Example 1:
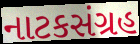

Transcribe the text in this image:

નાટકસંગ્રહ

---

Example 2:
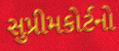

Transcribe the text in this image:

સુપ્રીમકોર્ટનો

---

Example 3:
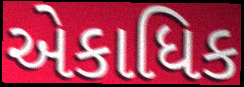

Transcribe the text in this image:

એકાધિક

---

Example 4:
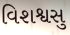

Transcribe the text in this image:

વિશશ્વસુ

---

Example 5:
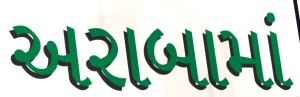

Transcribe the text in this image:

અરાબામાં